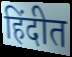
हिंदीत